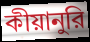
কীয়ানুরি